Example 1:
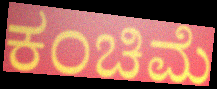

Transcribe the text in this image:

ಕಂಚಿಮೆ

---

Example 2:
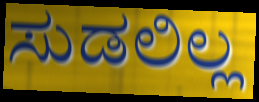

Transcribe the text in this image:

ಸುಡಲಿಲ್ಲ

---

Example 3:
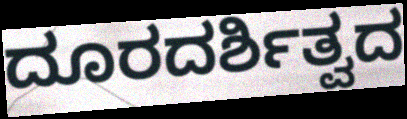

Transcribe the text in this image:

ದೂರದರ್ಶಿತ್ವದ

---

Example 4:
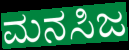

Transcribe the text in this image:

ಮನಸಿಜ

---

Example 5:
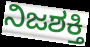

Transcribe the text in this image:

ನಿಜಶಕ್ತಿ